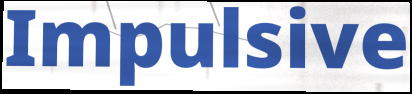
Impulsive